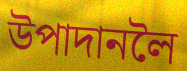
উপাদানলৈ